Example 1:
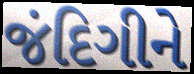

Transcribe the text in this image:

જંદિગીને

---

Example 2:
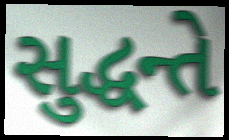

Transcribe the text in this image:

સુદ્ધન્તે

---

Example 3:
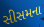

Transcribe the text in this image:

સીસમના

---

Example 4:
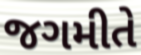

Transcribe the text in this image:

જગમીતે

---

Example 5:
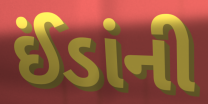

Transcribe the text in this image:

ઈંડાંની